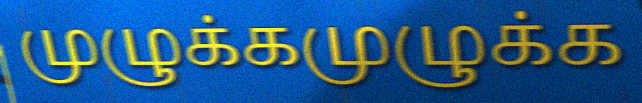
முழுக்கமுழுக்க